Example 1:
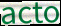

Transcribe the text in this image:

acto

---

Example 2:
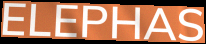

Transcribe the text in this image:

ELEPHAS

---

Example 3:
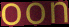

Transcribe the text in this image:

oon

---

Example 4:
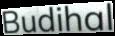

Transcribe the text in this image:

Budihal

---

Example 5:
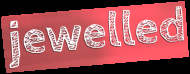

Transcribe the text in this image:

jewelled